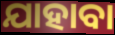
ଯାହାବା